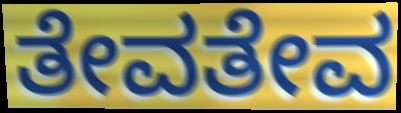
ತೇವತೇವ